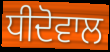
ਧੀਦੋਵਾਲ